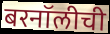
बरनॉलीची